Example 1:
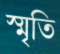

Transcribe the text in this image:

স্মৃতি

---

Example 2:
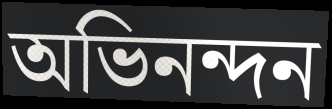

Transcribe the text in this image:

অভিনন্দন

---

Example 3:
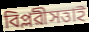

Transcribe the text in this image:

বিপ্লৱীসত্তাই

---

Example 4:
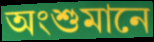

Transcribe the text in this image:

অংশুমানে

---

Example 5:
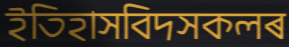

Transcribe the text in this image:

ইতিহাসবিদসকলৰ